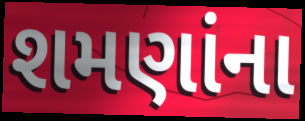
શમણાંના